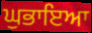
ਘੁਭਾਇਆ